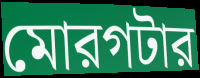
মোরগটার